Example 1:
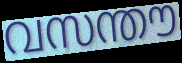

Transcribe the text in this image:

വസന്തൗ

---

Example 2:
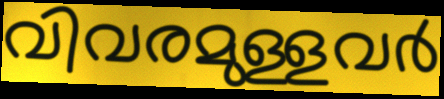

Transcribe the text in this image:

വിവരമുള്ളവർ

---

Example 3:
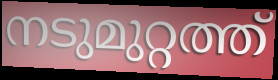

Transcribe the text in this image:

നടുമുറ്റത്ത്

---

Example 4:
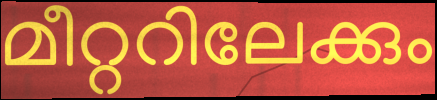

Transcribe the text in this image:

മീറ്ററിലേക്കും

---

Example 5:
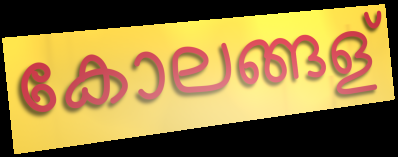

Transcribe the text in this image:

കോലങ്ങള്